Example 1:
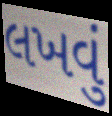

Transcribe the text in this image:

લખવું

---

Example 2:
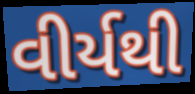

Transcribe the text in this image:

વીર્યથી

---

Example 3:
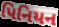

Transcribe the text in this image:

પિનિયન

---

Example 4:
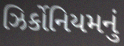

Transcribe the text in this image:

ઝિર્કોનિયમનું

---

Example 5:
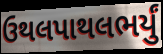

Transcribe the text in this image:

ઉથલપાથલભર્યું